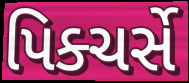
પિક્ચર્સે